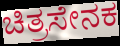
ಚಿತ್ರಸೇನಕ